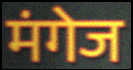
मंगेज